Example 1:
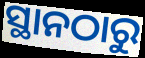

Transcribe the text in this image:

ସ୍ଥାନଠାରୁ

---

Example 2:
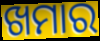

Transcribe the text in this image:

ଖମାର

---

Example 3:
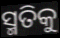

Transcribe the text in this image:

ସ୍ମତିକୁ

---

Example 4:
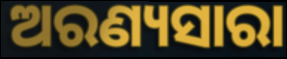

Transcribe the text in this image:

ଅରଣ୍ୟସାରା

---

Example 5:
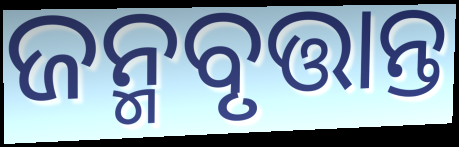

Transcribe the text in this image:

ଜନ୍ମବୃତ୍ତାନ୍ତ